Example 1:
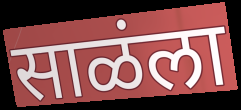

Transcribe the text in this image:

साळंला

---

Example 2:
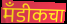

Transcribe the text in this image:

मँडीकचा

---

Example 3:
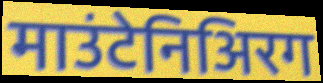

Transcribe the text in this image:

माउंटेनिअिरग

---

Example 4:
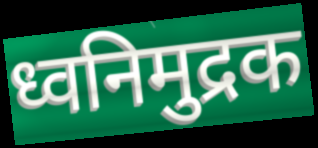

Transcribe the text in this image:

ध्वनिमुद्रक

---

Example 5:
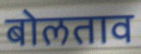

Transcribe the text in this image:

बोलताव